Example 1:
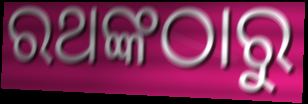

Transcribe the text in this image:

ରଥଙ୍କଠାରୁ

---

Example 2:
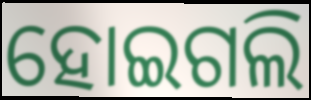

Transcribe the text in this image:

ହୋଇଗଲି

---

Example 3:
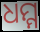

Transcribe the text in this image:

ଧମ୍ମ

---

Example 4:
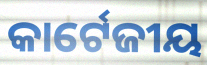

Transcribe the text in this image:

କାର୍ଟେଜୀୟ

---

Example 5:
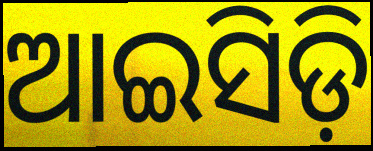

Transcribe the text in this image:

ଆଇସିଡ଼ି